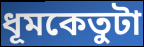
ধূমকেতুটা